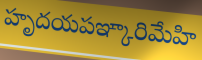
హృదయపఞ్కారిమేహి